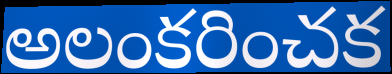
అలంకరించక